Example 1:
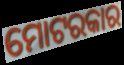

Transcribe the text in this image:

ମୋଟରକାର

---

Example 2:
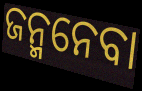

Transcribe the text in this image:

ଜନ୍ମନେବା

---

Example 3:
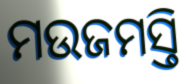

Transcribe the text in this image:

ମଉଜମସ୍ତି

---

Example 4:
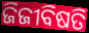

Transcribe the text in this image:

ଜିଜୀବିଷତି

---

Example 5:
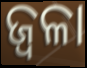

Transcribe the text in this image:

ଜ୍ଵଳା